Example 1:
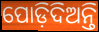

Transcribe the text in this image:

ପୋଡ଼ିଦିଅନ୍ତି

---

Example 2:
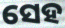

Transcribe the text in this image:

ସେହ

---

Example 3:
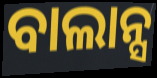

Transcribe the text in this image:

ବାଲାନ୍ସ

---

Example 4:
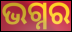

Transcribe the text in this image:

ଭଗ୍ନର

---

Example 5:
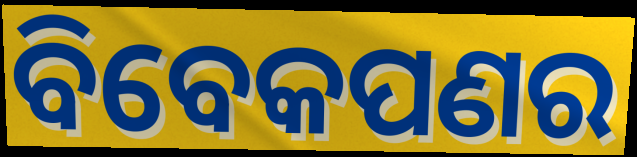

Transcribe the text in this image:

ବିବେକପଣର